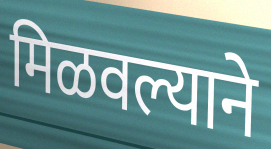
मिळवल्याने